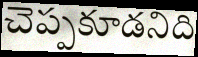
చెప్పకూడనిది